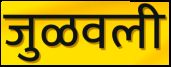
जुळवली